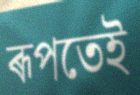
ৰূপতেই